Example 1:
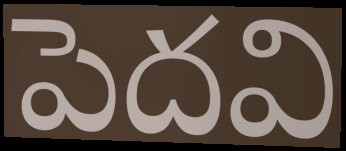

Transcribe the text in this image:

పెదవి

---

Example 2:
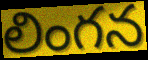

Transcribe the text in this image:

లింగన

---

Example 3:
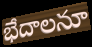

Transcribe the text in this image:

భేదాలనూ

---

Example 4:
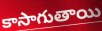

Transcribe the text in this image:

కాసాగుతాయి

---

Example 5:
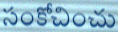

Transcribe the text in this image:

సంకోచించు